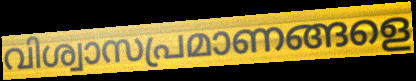
വിശ്വാസപ്രമാണങ്ങളെ